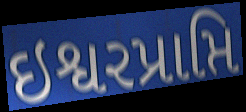
ઇશ્વરપ્રાપ્તિ